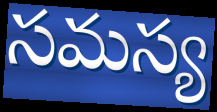
సమస్య